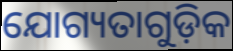
ଯୋଗ୍ୟତାଗୁଡ଼ିକ